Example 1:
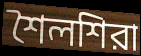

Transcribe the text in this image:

শৈলশিরা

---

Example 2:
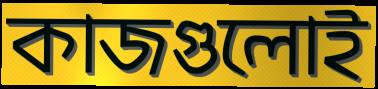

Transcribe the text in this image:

কাজগুলোই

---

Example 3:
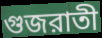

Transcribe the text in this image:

গুজরাতী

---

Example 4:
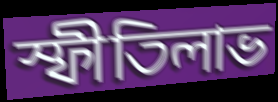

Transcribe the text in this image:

স্ফীতিলাভ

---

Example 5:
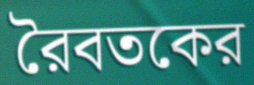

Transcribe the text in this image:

রৈবতকের